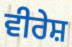
ਵੀਰੇਸ਼